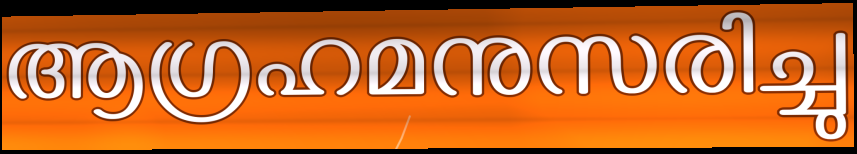
ആഗ്രഹമനുസരിച്ചു